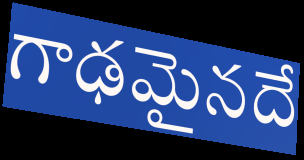
గాఢమైనదే